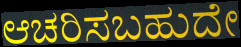
ಆಚರಿಸಬಹುದೇ